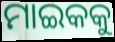
ମାଇକକୁ